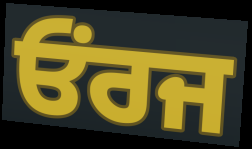
ਓਂਰਜ